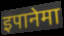
इपानेमा